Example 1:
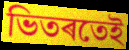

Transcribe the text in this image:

ভিতৰতেই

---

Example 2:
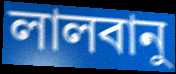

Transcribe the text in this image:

লালবানু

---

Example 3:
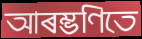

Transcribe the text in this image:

আৰম্ভণিতে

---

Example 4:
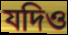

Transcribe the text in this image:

যদিও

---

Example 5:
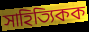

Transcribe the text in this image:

সাহিত্যিকক